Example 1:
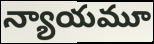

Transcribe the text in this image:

న్యాయమూ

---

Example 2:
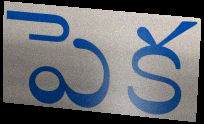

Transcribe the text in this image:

పెక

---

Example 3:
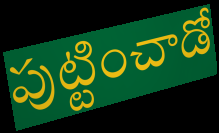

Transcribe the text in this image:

పుట్టించాడో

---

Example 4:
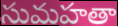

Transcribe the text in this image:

సుమహతా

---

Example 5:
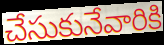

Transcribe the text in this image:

చేసుకునేవారికి